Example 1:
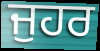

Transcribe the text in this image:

ਜੁਹਰ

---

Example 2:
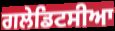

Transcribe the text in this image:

ਗਲੇਡਿਟਸੀਆ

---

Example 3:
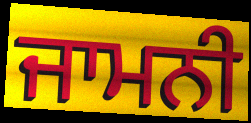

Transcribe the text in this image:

ਜਾਮਨੀ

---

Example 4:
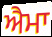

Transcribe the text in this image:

ਐਮਾ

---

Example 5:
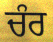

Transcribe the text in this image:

ਚੰਰ